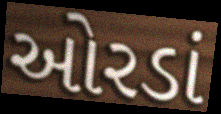
ઓરડાં